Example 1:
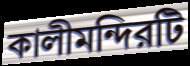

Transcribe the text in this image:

কালীমন্দিরটি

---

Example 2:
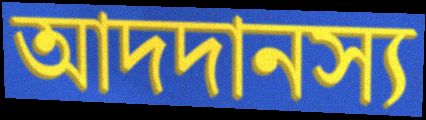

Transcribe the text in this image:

আদদানস্য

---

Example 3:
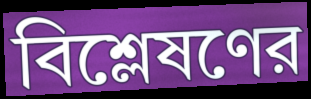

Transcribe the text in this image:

বিশ্লেষণের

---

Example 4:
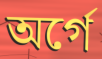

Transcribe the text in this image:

অর্গে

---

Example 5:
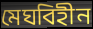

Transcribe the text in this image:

মেঘবিহীন